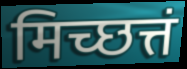
मिच्छत्तं